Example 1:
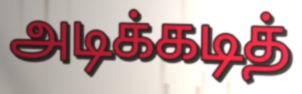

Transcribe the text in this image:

அடிக்கடித்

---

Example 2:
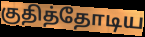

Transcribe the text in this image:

குதித்தோடிய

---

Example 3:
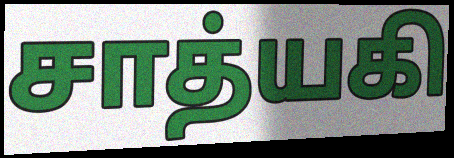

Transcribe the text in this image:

சாத்யகி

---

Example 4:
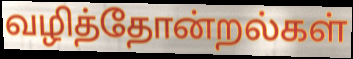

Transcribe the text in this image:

வழித்தோன்றல்கள்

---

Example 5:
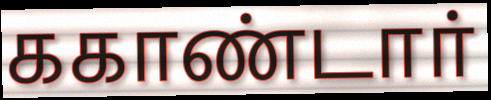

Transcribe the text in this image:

ககாண்டார்